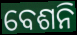
ବେଶନି